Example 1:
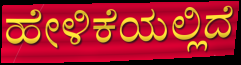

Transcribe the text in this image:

ಹೇಳಿಕೆಯಲ್ಲಿದೆ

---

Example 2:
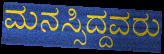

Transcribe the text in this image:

ಮನಸ್ಸಿದ್ದವರು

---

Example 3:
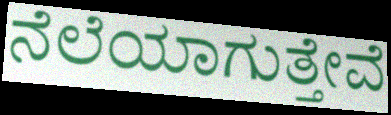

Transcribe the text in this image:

ನೆಲೆಯಾಗುತ್ತೇವೆ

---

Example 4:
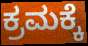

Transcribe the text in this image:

ಕ್ರಮಕ್ಕೆ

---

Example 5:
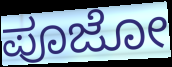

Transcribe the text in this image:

ಪೂಜೋ